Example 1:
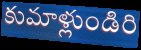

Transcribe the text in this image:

కుమాళ్లుండిరి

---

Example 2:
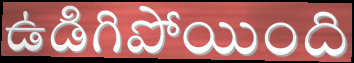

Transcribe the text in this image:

ఉడిగిపోయింది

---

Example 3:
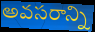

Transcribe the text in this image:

అవసరాన్ని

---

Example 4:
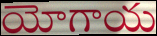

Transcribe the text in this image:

యోగాయ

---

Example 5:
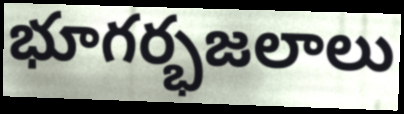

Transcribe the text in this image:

భూగర్భజలాలు